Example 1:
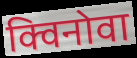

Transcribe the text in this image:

क्विनोवा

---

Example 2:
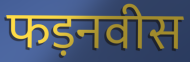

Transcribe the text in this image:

फड़नवीस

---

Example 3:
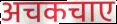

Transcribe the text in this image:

अचकचाए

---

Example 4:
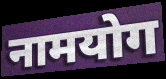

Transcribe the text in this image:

नामयोग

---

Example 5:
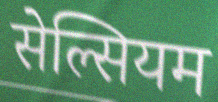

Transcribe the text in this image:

सेल्सियम